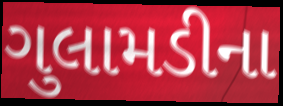
ગુલામડીના